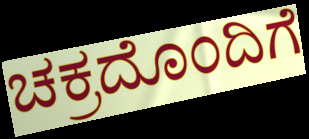
ಚಕ್ರದೊಂದಿಗೆ